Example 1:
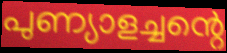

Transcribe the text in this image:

പുണ്യാളച്ചന്റെ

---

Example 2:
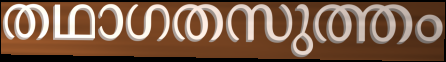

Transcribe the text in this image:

തഥാഗതസുത്തം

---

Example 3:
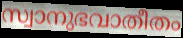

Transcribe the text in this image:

സ്വാനുഭവാതീതം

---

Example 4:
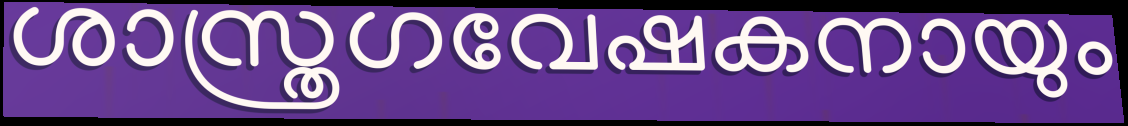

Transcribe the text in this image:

ശാസ്ത്രഗവേഷകനായും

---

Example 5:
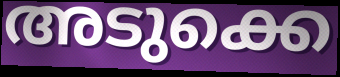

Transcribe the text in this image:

അടുക്കെ